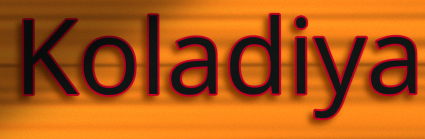
Koladiya